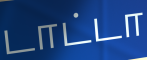
டாட்டா